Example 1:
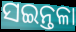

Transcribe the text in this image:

ସଇନ୍ତଳା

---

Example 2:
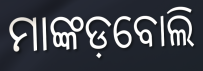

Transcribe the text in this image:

ମାଙ୍କଡ଼ବୋଲି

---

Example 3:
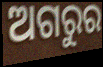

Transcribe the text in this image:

ଅଗରୁର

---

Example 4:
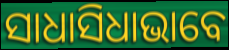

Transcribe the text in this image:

ସାଧାସିଧାଭାବେ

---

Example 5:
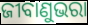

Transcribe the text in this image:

ଜୀବାଣୁଭରା